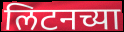
लिटनच्या